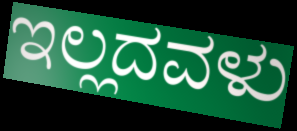
ಇಲ್ಲದವಳು